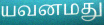
யவனமது